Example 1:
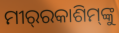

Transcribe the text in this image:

ମୀର୍‌ରକାଶିମ୍‌ଙ୍କୁ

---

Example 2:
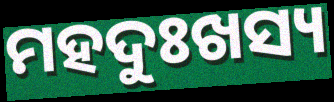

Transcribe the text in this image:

ମହଦୁଃଖସ୍ୟ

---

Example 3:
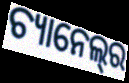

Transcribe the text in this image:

ଚ୍ୟାନେଲ୍‌ର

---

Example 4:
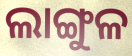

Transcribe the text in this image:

ଲାଙ୍ଗୁଳ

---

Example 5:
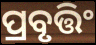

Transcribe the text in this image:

ପ୍ରବୃତ୍ତିଂ